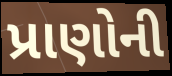
પ્રાણોની